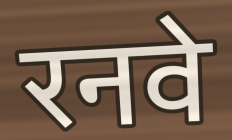
रनवे